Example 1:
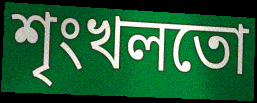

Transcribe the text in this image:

শৃংখলতো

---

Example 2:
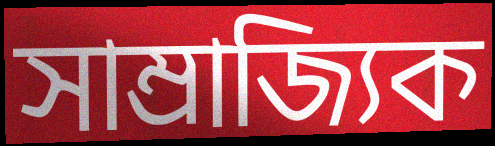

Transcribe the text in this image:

সাম্ৰাজ্যিক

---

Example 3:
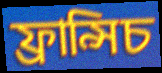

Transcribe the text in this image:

ফ্ৰান্সিচ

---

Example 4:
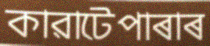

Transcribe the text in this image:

কাৱাটেপাৰাৰ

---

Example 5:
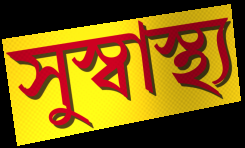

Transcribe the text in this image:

সুস্বাস্থ্য